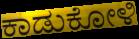
ಕಾಡುಕೋಳಿ